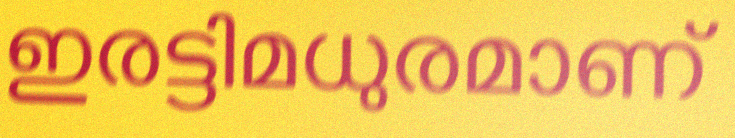
ഇരട്ടിമധുരമാണ്